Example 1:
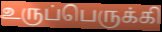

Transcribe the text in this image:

உருப்பெருக்கி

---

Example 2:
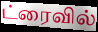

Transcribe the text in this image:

ட்ரைவில்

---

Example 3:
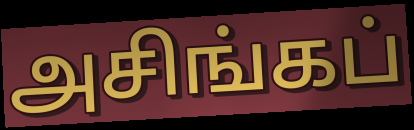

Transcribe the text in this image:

அசிங்கப்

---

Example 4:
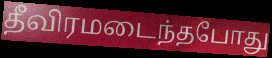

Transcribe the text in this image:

தீவிரமடைந்தபோது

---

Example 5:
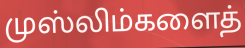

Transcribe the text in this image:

முஸ்லிம்களைத்